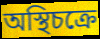
অস্থিচক্রে